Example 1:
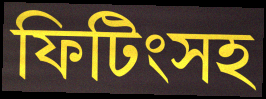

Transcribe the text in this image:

ফিটিংসহ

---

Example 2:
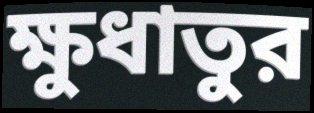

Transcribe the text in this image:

ক্ষুধাতুর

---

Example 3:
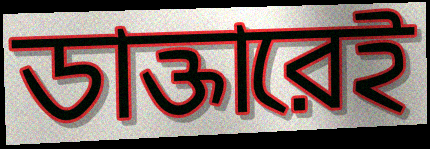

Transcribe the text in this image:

ডাক্তারেই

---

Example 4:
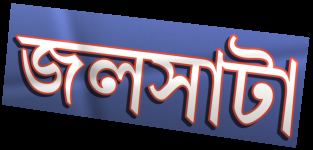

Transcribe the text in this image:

জলসাটা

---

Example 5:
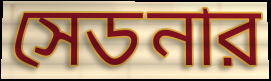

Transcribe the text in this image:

সেডনার